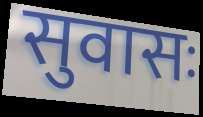
सुवासः